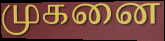
முகனை